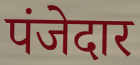
पंजेदार